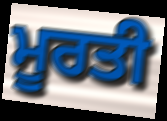
ਮੂਰਤੀ